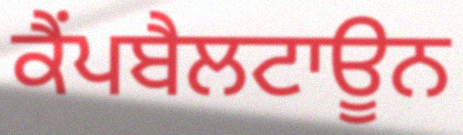
ਕੈਂਪਬੈਲਟਾਊਨ